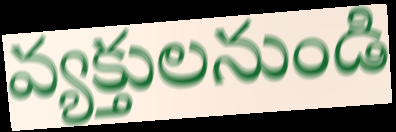
వ్యక్తులనుండి